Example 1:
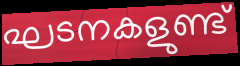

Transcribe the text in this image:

ഘടനകളുണ്ട്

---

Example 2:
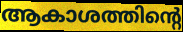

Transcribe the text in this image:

ആകാശത്തിന്റെ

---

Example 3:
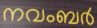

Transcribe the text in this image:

നവംബർ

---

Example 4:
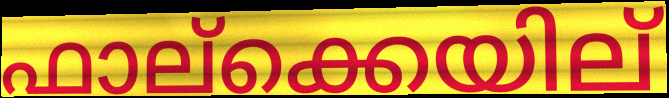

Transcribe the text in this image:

ഫാല്ക്കെയില്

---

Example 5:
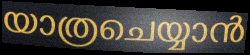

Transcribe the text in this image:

യാത്രചെയ്യാൻ